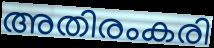
അതിരംകരി